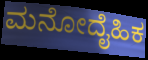
ಮನೋದೈಹಿಕ